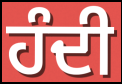
ਹੰਦੀ